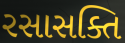
રસાસક્તિ